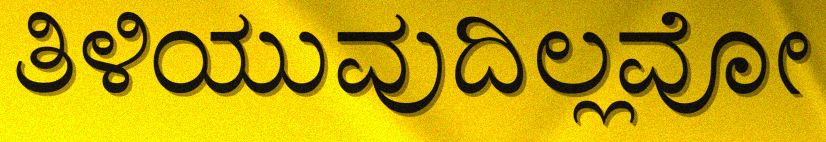
ತಿಳಿಯುವುದಿಲ್ಲವೋ